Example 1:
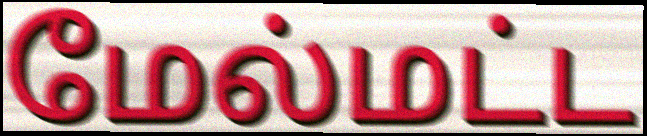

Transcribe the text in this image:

மேல்மட்ட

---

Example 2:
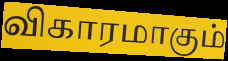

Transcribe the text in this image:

விகாரமாகும்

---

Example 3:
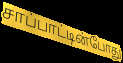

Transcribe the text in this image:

சாப்பாட்டின்போது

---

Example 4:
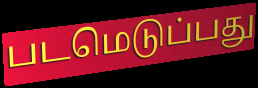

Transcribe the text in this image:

படமெடுப்பது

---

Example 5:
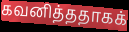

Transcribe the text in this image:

கவனித்ததாகக்